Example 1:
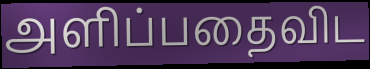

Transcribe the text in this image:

அளிப்பதைவிட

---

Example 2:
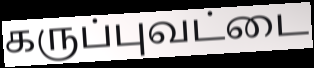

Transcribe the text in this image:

கருப்புவட்டை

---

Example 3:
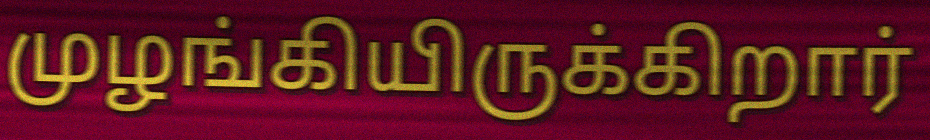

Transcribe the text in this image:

முழங்கியிருக்கிறார்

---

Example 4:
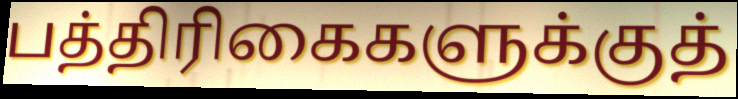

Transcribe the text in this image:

பத்திரிகைகளுக்குத்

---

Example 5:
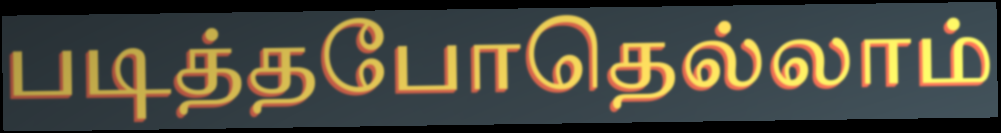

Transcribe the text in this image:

படித்தபோதெல்லாம்